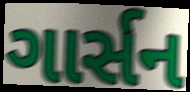
ગાર્સન